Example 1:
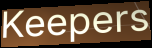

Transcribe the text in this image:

Keepers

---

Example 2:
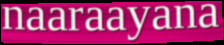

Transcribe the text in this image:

naaraayana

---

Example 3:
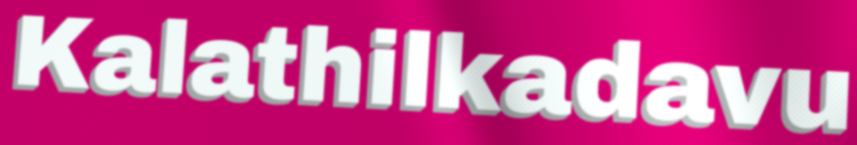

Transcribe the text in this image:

Kalathilkadavu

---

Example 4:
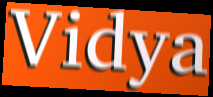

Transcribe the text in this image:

Vidya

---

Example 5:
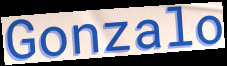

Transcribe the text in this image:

Gonzalo